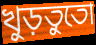
খুড়তুতো